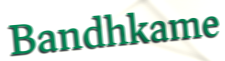
Bandhkame